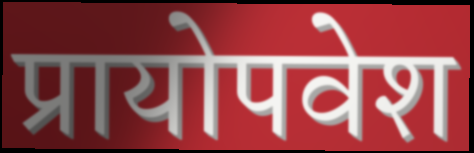
प्रायोपवेश